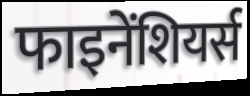
फाइनेंशियर्स